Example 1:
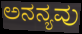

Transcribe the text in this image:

ಅನನ್ಯವು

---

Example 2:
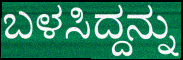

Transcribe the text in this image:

ಬಳಸಿದ್ದನ್ನು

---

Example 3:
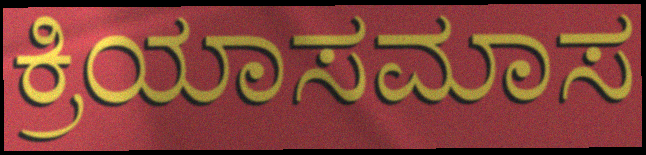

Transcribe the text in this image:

ಕ್ರಿಯಾಸಮಾಸ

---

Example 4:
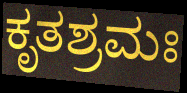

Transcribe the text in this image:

ಕೃತಶ್ರಮಃ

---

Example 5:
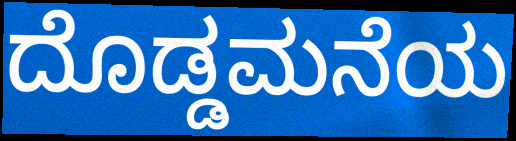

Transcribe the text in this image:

ದೊಡ್ಡಮನೆಯ